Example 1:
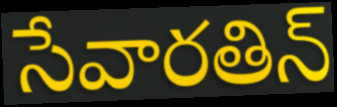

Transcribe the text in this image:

సేవారతిన్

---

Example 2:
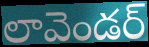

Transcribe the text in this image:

లావెండర్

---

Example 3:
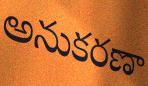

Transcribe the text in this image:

అనుకరణా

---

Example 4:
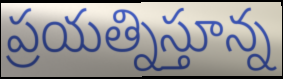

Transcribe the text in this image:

ప్రయత్నిస్తూన్న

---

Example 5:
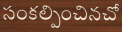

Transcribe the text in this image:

సంకల్పించినచో